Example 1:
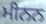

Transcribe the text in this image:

ਮੀਨਨ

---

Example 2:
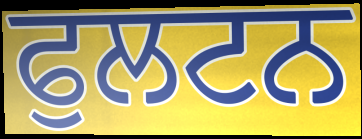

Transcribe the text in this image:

ਫੁਲਟਨ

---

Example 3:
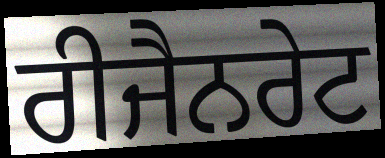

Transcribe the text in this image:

ਰੀਜੈਨਰੇਟ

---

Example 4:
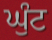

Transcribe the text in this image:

ਘੁੰਟ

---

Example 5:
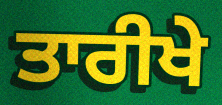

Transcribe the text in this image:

ਤਾਰੀਖੇ